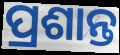
ପ୍ରଶାନ୍ତ